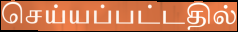
செய்யப்பட்டதில்